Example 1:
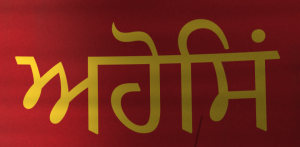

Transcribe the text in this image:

ਅਹੋਸਿਂ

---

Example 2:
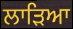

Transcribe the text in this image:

ਲਾੜਿਆ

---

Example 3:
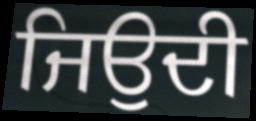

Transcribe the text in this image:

ਜਿਉਦੀ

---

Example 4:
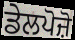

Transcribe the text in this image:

ਡੇਲਪੋਜ਼ੋ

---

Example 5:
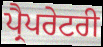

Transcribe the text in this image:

ਪ੍ਰੈਪਰੇਟਰੀ